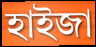
হাইজা